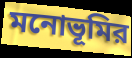
মনোভূমির